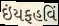
ઇંયફહવિં